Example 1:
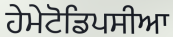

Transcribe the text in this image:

ਹੇਮੇਟੋਡਿਪਸੀਆ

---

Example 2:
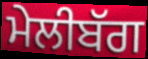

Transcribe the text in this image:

ਮੇਲੀਬੱਗ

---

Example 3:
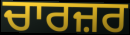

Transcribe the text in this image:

ਚਾਰਜ਼ਰ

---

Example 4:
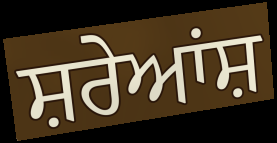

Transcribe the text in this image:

ਸ਼ਰੇਆਂਸ਼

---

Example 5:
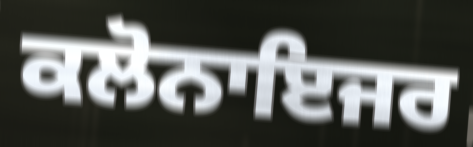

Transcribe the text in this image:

ਕਲੋਨਾਇਜਰ